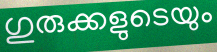
ഗുരുക്കളുടെയും